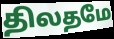
திலதமே